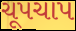
ચૂપચાપ